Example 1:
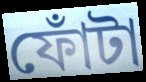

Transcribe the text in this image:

ফোঁটা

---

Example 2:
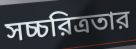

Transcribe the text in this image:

সচ্চরিত্রতার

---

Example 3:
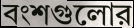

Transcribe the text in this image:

বংশগুলোর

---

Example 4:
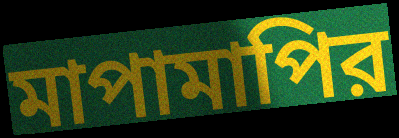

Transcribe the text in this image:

মাপামাপির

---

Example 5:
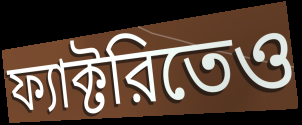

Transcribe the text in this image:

ফ্যাক্টরিতেও